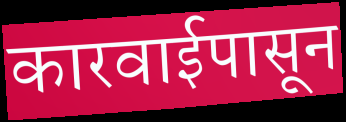
कारवाईपासून